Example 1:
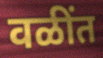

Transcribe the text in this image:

वळींत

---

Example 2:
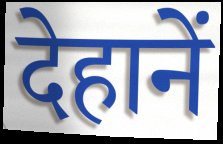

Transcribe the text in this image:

देहानें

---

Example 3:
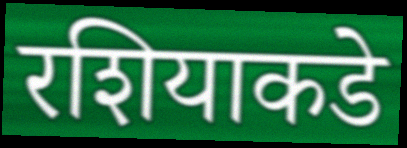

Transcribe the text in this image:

रशियाकडे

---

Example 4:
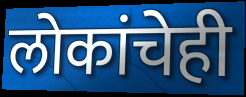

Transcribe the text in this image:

लोकांचेही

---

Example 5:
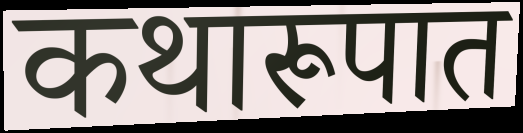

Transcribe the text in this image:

कथारूपात